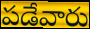
పడేవారు